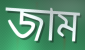
জাম